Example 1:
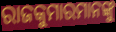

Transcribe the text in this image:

ରାଜକୁମାରମାନଙ୍କୁ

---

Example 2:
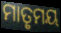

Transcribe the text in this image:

ମାତୃମୟ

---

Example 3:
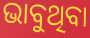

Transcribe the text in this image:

ଭାବୁଥିବା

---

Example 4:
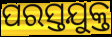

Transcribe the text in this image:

ପରସ୍ତଯୁକ୍ତ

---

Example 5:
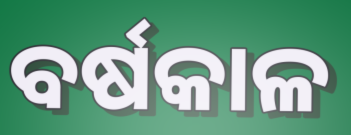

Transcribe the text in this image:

ବର୍ଷକାଳ